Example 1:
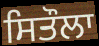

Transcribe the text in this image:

ਸਿਤੌਲਾ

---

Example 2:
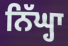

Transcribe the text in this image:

ਨਿੱਘ੍ਹਾ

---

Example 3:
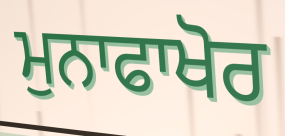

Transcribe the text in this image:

ਮੁਨਾਫਾਖੋਰ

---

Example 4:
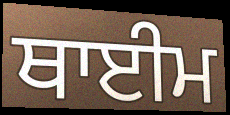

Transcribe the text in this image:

ਥਾਈਮ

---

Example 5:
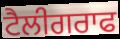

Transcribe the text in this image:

ਟੈਲੀਗਰਾਫ